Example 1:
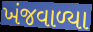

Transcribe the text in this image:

ખંજવાળ્યા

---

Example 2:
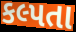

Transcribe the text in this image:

કલ્પતા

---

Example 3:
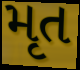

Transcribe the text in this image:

મૃત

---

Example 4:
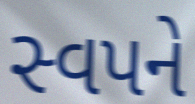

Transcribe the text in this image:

સ્વપને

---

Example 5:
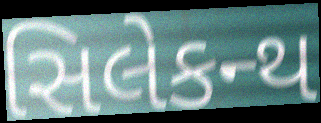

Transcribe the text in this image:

સિલેકન્થ